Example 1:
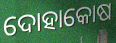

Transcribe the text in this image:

ଦୋହାକୋଷ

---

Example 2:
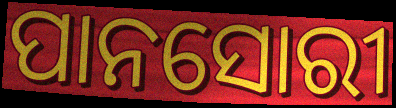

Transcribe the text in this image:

ପାନସୋରୀ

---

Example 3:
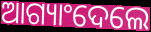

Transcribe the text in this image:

ଆଗ୍ୟାଂଦେଲେ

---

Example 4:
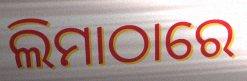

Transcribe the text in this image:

ଲିମାଠାରେ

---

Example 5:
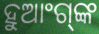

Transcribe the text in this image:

ହୁଆଂଗ୍‍ଙ୍କ